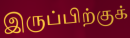
இருப்பிற்குக்